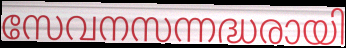
സേവനസന്നദ്ധരായി